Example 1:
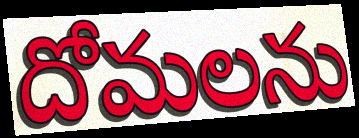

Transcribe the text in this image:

దోమలను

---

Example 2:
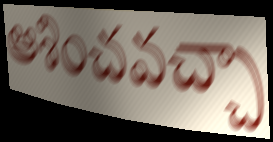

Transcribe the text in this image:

ఆశించవచ్చా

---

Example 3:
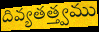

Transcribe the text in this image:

దివ్యతత్త్వము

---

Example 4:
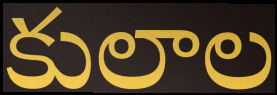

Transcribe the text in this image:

కులాల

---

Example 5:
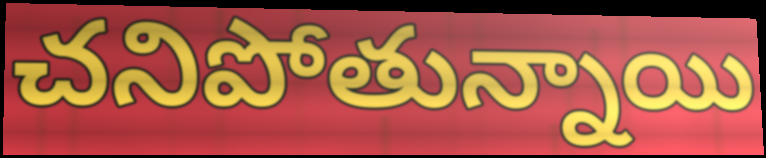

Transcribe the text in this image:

చనిపోతున్నాయి